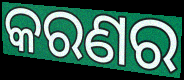
କରଣର